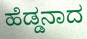
ಹೆಡ್ಡನಾದ